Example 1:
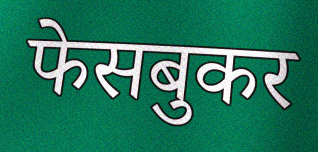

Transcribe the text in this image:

फेसबुकर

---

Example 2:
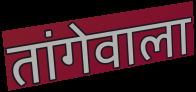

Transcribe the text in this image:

तांगेवाला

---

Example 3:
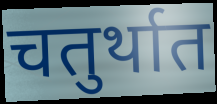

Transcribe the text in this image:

चतुर्थात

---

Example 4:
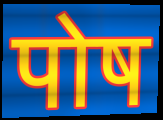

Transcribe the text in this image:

पोष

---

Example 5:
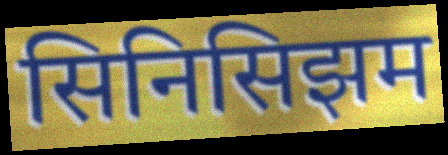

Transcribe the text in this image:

सिनिसिझम